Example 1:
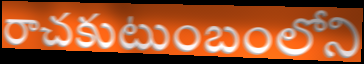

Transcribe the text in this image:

రాచకుటుంబంలోని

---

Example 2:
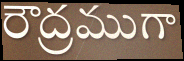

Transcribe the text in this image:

రౌద్రముగా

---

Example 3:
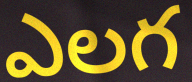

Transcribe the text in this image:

ఎలగ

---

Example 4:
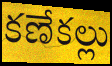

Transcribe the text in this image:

కణేకల్లు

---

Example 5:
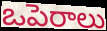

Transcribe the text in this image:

ఒపెరాలు